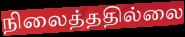
நிலைத்ததில்லை